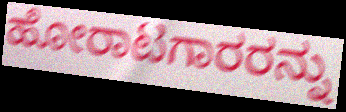
ಹೋರಾಟಗಾರರನ್ನು